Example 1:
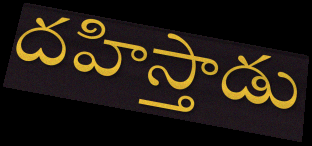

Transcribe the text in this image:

దహిస్తాడు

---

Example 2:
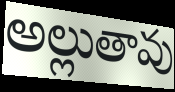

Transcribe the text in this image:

అల్లుతావు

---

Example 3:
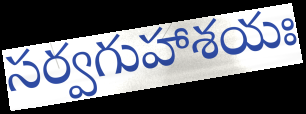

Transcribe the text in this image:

సర్వగుహాశయః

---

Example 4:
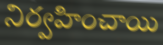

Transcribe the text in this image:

నిర్వహించాయి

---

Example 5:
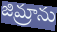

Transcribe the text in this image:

జిమ్రాను